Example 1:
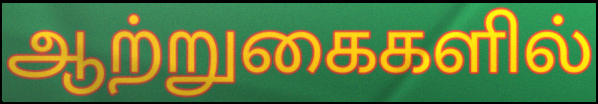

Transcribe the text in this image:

ஆற்றுகைகளில்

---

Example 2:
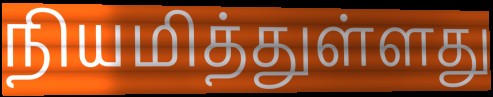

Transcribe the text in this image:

நியமித்துள்ளது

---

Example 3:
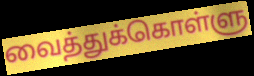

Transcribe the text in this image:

வைத்துக்கொள்ளு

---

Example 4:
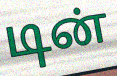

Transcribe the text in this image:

டின்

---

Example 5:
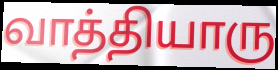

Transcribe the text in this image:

வாத்தியாரு